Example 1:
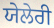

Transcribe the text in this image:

ਯੇਲੇਰੀ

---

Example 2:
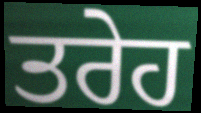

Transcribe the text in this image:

ਤਰੇਹ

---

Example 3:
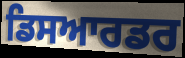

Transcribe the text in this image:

ਡਿਸਆਰਡਰ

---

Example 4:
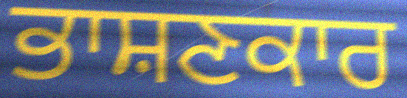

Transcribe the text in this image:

ਭਾਸ਼ਣਕਾਰ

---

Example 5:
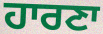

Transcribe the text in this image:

ਹਾਰਣਾ